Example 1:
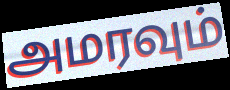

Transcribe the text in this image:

அமரவும்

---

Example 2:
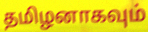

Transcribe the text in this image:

தமிழனாகவும்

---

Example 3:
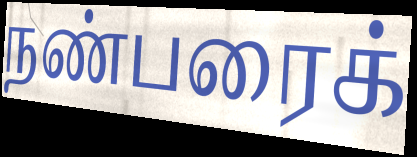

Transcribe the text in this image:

நண்பரைக்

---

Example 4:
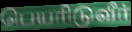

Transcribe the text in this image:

பெயரிடுவீர்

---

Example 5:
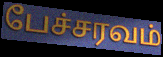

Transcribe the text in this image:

பேச்சரவம்